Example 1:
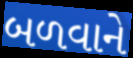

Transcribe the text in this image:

બળવાને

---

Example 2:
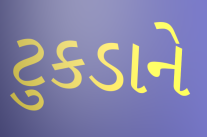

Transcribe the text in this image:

ટુકડાને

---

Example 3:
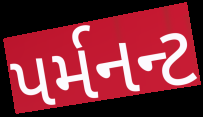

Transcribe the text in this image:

પર્મનન્ટ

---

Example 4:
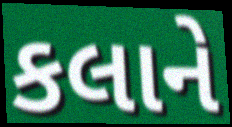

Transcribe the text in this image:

કલાને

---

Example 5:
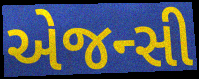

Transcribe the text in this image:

એજન્સી